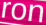
ron